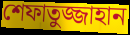
শেফাতুজ্জাহান